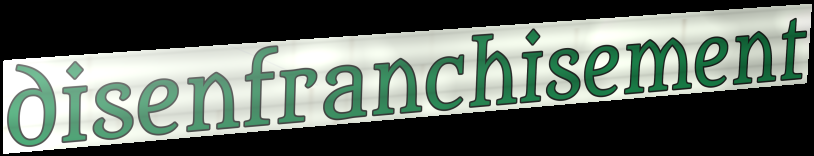
disenfranchisement